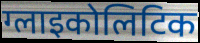
ग्लाइकोलिटिक